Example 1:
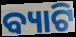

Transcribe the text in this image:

ବ୍ୟାଟି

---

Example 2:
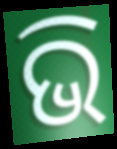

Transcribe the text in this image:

ଭି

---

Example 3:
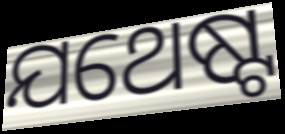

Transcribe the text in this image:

ଯଥେଷ୍ଟ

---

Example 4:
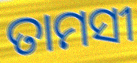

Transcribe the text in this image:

ତାମସୀ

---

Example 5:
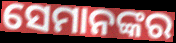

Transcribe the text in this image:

ସେମାନଙ୍କର